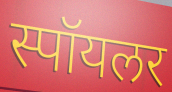
स्पॉयलर